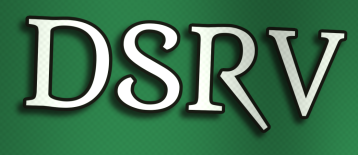
DSRV